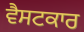
ਵੈਸਟਕਾਰ